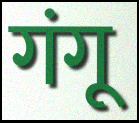
गंगू